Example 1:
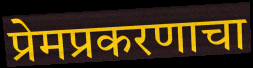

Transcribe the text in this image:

प्रेमप्रकरणाचा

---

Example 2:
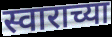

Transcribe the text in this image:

स्वाराच्या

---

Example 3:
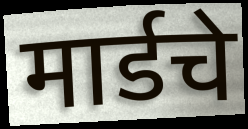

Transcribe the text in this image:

मार्डचे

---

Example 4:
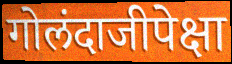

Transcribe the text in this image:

गोलंदाजीपेक्षा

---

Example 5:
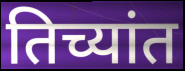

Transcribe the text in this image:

तिच्यांत